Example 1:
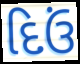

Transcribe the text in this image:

દિઉં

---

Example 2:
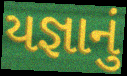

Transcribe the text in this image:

યજ્ઞાનું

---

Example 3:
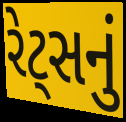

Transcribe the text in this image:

રેટ્સનું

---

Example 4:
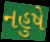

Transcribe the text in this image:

નહુષે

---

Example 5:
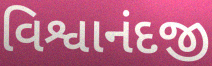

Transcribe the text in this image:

વિશ્વાનંદજી